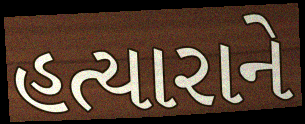
હત્યારાને